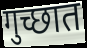
गुच्छात